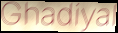
Ghadiyal